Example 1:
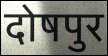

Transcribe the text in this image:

दोषपुर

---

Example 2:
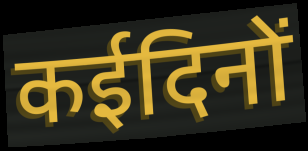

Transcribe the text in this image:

कईदिनों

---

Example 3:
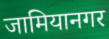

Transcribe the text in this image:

जामियानगर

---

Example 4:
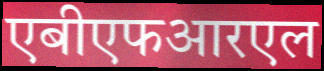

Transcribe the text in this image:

एबीएफआरएल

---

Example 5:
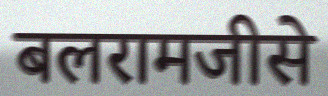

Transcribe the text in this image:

बलरामजीसे